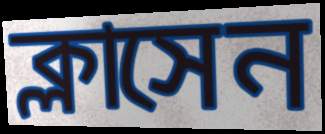
ক্লাসেন